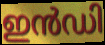
ഇൻഡി